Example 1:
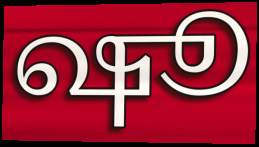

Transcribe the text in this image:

ஷூ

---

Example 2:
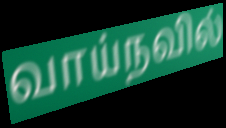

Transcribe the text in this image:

வாய்நவில்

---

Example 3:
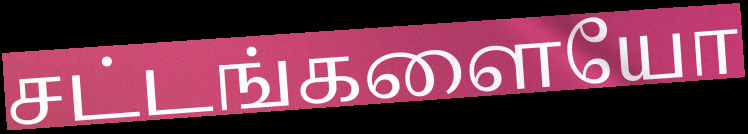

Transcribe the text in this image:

சட்டங்களையோ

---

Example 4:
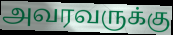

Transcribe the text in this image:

அவரவருக்கு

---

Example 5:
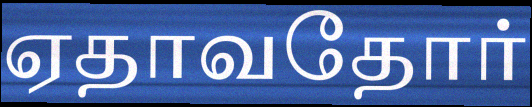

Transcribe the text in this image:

ஏதாவதோர்